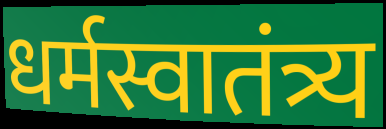
धर्मस्वातंत्र्य